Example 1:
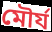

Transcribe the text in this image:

মৌৰ্য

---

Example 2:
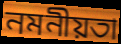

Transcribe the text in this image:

নমনীয়তা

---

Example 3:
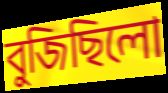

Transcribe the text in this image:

বুজিছিলো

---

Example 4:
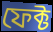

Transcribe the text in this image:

ফেক্ট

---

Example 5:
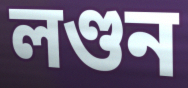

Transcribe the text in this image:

লণ্ডন